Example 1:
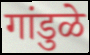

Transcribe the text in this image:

गांडुळे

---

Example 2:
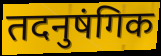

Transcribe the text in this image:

तदनुषंगिक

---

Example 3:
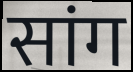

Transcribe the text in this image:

सांग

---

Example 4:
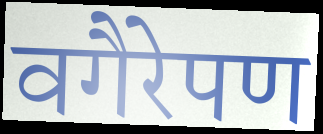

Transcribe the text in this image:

वगैरेपण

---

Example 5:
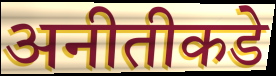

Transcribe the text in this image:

अनीतीकडे